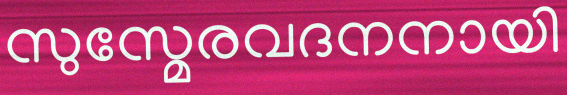
സുസ്മേരവദനനായി